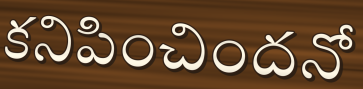
కనిపించిందనో